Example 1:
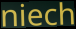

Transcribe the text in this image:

niech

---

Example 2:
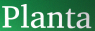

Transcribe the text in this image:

Planta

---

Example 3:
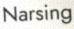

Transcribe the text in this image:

Narsing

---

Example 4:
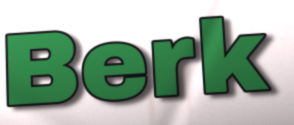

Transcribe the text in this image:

Berk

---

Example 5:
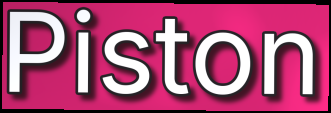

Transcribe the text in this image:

Piston